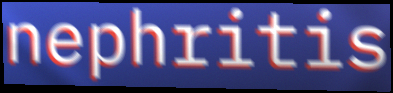
nephritis